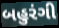
બહુરંગી